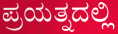
ಪ್ರಯತ್ನದಲ್ಲಿ